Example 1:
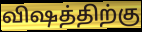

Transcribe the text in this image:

விஷத்திற்கு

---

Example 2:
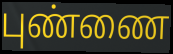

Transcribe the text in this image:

புண்ணை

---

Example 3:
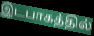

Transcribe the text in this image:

இடபாகத்தில்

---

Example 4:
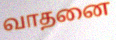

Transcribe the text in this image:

வாதனை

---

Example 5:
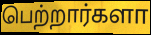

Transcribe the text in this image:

பெற்றார்களா